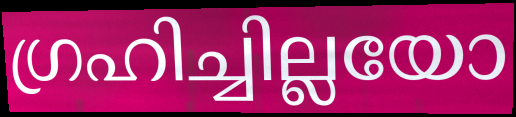
ഗ്രഹിച്ചില്ലയോ